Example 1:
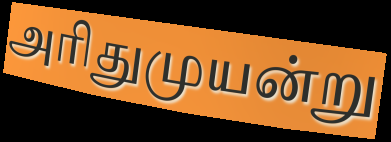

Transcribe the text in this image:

அரிதுமுயன்று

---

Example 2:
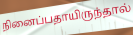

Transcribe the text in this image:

நினைப்பதாயிருந்தால்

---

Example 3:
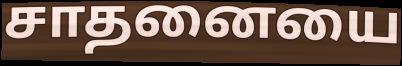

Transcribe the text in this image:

சாதனையை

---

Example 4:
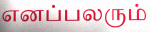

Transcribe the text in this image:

எனப்பலரும்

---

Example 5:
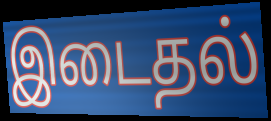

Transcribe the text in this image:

இடைதல்